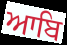
ਆਬਿ